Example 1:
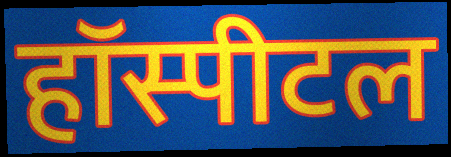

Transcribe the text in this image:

हॉस्पीटल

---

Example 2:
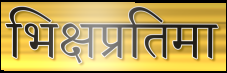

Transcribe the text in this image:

भिक्षप्रतिमा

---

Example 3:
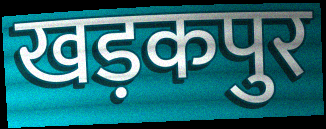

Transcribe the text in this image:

खड़कपुर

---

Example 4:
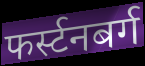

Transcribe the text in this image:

फर्स्टनबर्ग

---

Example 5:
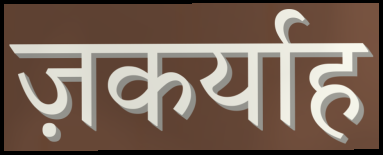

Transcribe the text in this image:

ज़कर्याह